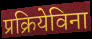
प्रक्रियेविना